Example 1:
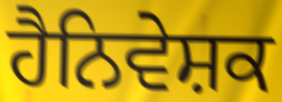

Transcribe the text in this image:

ਹੈਨਿਵੇਸ਼ਕ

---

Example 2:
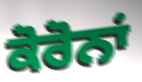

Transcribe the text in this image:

ਕੋਰੋਨਾਂ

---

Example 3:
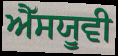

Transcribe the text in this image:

ਐੱਸਯੂਵੀ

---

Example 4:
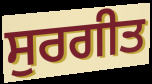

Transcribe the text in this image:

ਸੁਰਗੀਤ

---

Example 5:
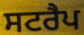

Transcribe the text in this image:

ਸਟਰੈਪ